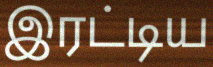
இரட்டிய